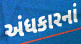
અંધકારનાં